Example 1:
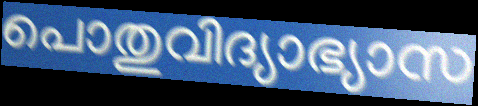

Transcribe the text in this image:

പൊതുവിദ്യാഭ്യാസ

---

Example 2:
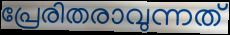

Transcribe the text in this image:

പ്രേരിതരാവുന്നത്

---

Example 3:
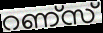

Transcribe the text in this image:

റണ്സ്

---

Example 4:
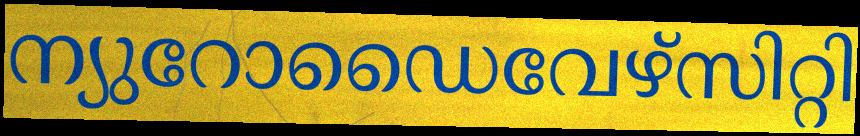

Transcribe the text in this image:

ന്യുറോഡൈവേഴ്സിറ്റി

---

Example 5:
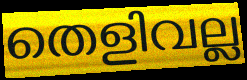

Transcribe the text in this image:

തെളിവല്ല